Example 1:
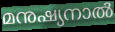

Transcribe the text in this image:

മനുഷ്യനാൽ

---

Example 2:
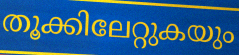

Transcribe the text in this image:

തൂക്കിലേറ്റുകയും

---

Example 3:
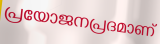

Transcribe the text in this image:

പ്രയോജനപ്രദമാണ്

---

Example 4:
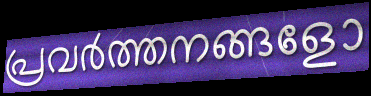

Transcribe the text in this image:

പ്രവർത്തനങ്ങളോ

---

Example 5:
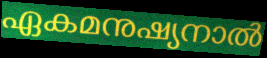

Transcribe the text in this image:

ഏകമനുഷ്യനാൽ